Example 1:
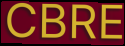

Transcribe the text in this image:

CBRE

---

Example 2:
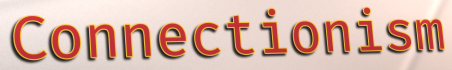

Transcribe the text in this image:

Connectionism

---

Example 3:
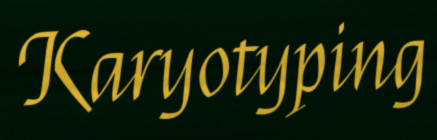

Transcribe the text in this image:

Karyotyping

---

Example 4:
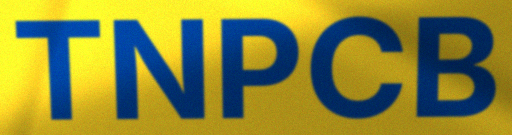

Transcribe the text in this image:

TNPCB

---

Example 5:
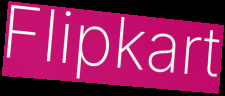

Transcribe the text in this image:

Flipkart